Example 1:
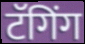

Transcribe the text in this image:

टॅगिंग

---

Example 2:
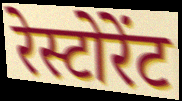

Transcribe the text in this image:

रेस्टोरेंट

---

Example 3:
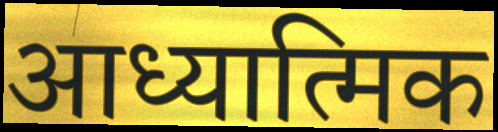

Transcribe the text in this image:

आध्यात्मिक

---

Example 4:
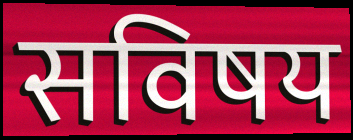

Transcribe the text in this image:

सविषय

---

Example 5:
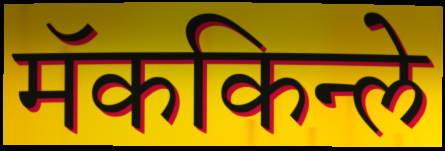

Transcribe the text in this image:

मॅककिन्ले